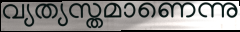
വ്യത്യസ്തമാണെന്നു